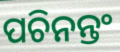
ପଚିନନ୍ତଂ